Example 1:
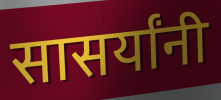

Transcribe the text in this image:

सासर्यांनी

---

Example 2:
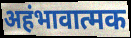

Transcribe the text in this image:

अहंभावात्मक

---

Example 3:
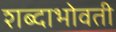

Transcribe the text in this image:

शब्दाभोवती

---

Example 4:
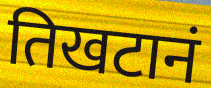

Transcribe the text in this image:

तिखटानं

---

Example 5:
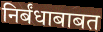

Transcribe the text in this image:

निर्बंधाबाबत